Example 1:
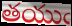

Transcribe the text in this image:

తయుఁ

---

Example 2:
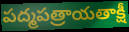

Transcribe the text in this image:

పద్మపత్రాయతాక్షీ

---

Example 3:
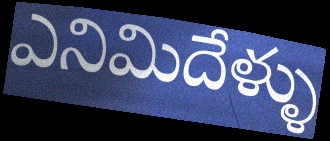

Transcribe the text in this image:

ఎనిమిదేళ్ళు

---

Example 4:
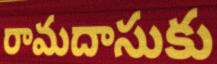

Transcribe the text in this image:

రామదాసుకు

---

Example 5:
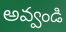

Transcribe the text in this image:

అవ్వండి